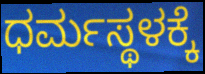
ಧರ್ಮಸ್ಥಳಕ್ಕೆ